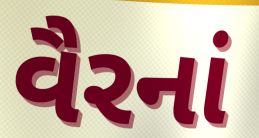
વૈરનાં